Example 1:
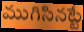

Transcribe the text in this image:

ముగిసినట్టే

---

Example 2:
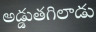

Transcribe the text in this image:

అడ్డుతగిలాడు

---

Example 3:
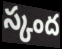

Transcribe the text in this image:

స్కంద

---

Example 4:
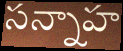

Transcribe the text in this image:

సన్నాహ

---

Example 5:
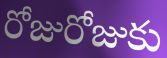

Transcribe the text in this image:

రోజురోజుకు